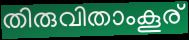
തിരുവിതാംകൂര്